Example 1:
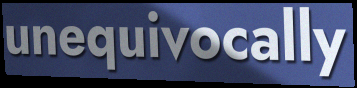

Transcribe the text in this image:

unequivocally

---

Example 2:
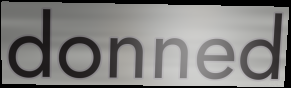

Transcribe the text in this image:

donned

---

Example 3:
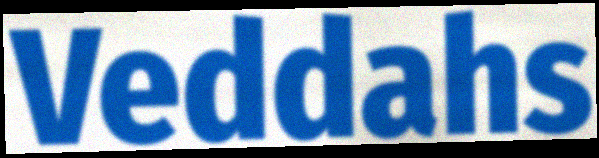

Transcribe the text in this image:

Veddahs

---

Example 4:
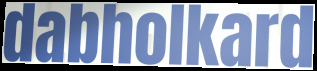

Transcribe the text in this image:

dabholkard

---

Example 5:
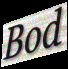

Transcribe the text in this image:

Bod